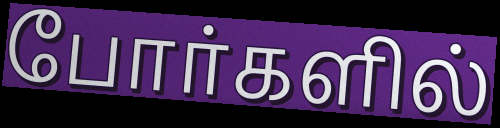
போர்களில்